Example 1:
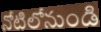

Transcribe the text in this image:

నోటిలోనుండి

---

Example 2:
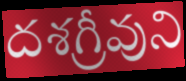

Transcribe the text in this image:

దశగ్రీవుని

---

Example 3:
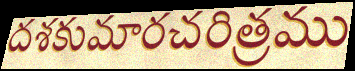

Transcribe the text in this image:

దశకుమారచరిత్రము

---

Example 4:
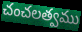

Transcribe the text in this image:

చంచలత్వము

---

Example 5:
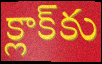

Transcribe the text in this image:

క్లాక్‌కు